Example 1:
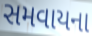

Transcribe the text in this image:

સમવાયના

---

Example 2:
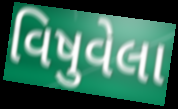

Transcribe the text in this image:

વિષુવેલા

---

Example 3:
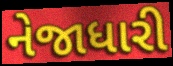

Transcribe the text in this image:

નેજાધારી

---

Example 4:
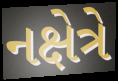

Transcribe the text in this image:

નક્ષેત્રે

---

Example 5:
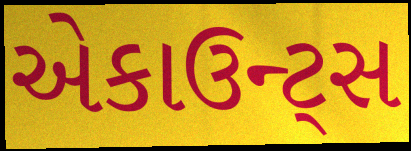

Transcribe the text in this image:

એકાઉન્ટ્સ